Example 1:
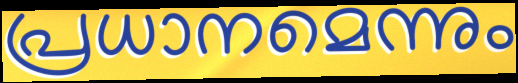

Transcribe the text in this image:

പ്രധാനമെന്നും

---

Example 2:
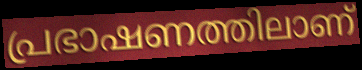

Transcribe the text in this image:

പ്രഭാഷണത്തിലാണ്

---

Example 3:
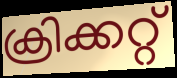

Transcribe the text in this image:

ക്രിക്കറ്റ്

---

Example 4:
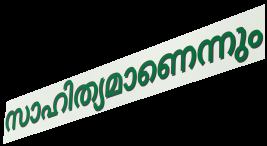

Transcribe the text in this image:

സാഹിത്യമാണെന്നും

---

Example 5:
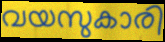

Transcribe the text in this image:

വയസുകാരി